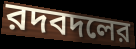
রদবদলের